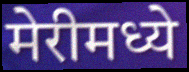
मेरीमध्ये